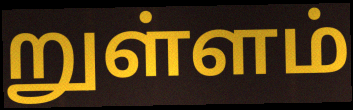
றுள்ளம்